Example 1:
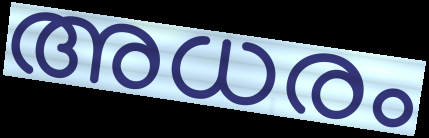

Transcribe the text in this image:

അധരം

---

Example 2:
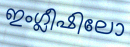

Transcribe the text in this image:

ഇംഗ്ലീഷിലോ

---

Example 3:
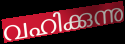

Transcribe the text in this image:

വഹിക്കുന്നു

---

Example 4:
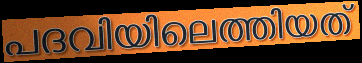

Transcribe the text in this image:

പദവിയിലെത്തിയത്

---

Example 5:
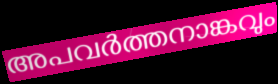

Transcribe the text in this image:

അപവർത്തനാങ്കവും